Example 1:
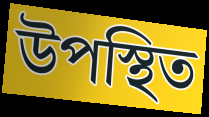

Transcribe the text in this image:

উপস্থিত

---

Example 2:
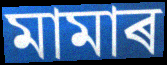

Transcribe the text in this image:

মামাৰ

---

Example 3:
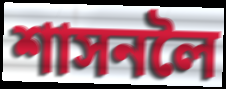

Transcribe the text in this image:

শাসনলৈ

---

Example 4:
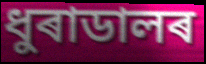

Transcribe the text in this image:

ধুৰাডালৰ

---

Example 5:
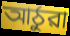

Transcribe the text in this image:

আঠুৱা